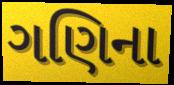
ગણિના